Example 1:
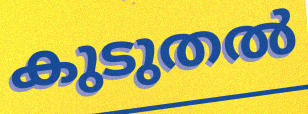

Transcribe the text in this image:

കുടുതൽ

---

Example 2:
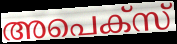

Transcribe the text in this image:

അപെക്സ്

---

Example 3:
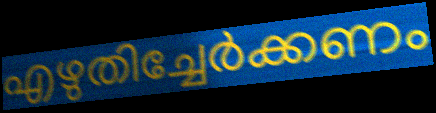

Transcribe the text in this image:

എഴുതിച്ചേർക്കണം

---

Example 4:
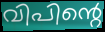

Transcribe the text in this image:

വിപിന്റെ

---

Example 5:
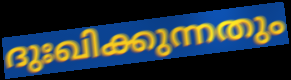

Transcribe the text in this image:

ദുഃഖിക്കുന്നതും